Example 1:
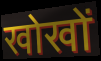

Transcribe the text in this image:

खोखों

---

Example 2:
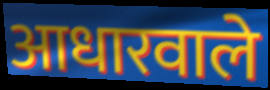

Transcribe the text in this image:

आधारवाले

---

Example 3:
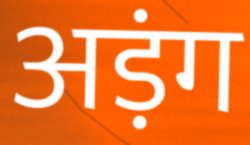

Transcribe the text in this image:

अड़ंग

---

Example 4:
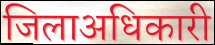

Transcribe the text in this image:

जिलाअधिकारी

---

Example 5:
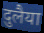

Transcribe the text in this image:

दुलैया